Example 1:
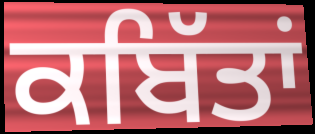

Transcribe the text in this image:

ਕਬਿੱਤਾਂ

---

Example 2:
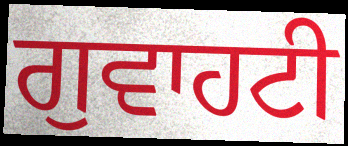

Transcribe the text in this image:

ਗੁਵਾਹਟੀ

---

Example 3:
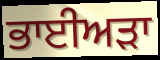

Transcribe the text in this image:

ਭਾਈਅੜਾ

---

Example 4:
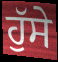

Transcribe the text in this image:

ਹੁੱਸੇ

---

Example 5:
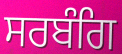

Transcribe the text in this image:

ਸਰਬੰਗਿ